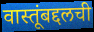
वास्तूंबद्दलची